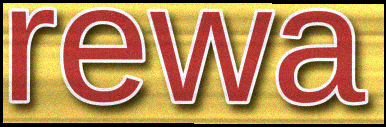
rewa